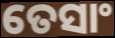
ତେସାଂ